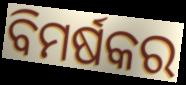
ବିମର୍ଷକର